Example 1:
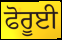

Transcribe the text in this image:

ਫੋਰੂਈ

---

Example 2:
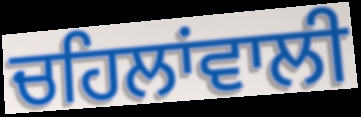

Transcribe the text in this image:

ਚਹਿਲਾਂਵਾਲੀ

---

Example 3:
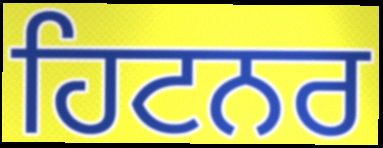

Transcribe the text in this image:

ਹਿਟਨਰ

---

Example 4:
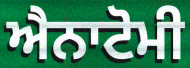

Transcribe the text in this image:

ਐਨਾਟੋਮੀ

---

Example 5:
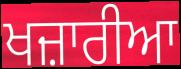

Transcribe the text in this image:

ਖਜ਼ਾਰੀਆ